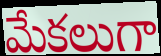
మేకలుగా